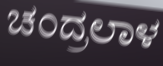
ಚಂದ್ರಲಾಳ